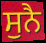
ਸੁਨੈ